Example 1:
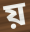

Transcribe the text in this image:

য়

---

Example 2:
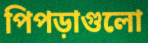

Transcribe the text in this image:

পিপড়াগুলো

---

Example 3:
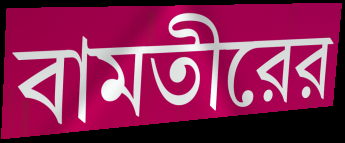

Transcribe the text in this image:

বামতীরের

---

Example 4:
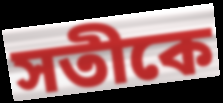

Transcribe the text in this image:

সতীকে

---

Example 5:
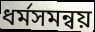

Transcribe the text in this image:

ধর্মসমন্বয়